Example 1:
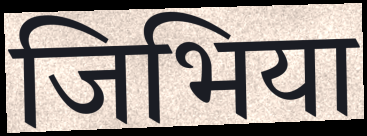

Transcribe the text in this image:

जिभिया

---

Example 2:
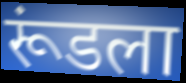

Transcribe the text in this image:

रूंडला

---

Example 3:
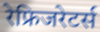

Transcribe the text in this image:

रेफ्रिजरेटर्स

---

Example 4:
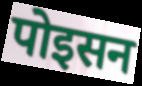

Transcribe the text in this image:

पोइसन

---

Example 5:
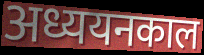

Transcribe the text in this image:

अध्ययनकाल